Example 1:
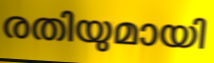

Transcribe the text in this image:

രതിയുമായി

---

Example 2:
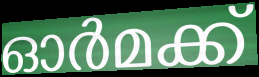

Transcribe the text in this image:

ഓർമക്ക്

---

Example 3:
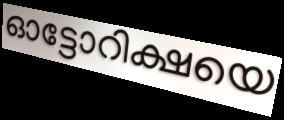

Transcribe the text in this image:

ഓട്ടോറിക്ഷയെ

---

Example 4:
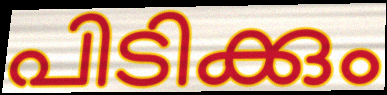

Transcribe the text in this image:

പിടിക്കും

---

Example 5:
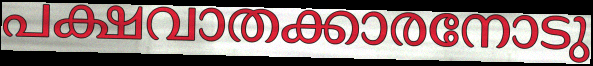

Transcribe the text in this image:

പക്ഷവാതക്കാരനോടു